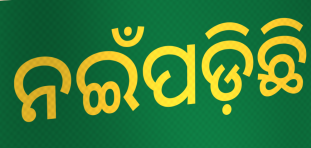
ନଇଁପଡ଼ିଛି